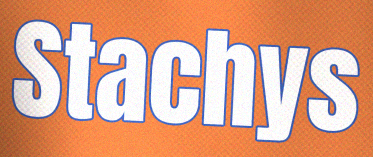
Stachys